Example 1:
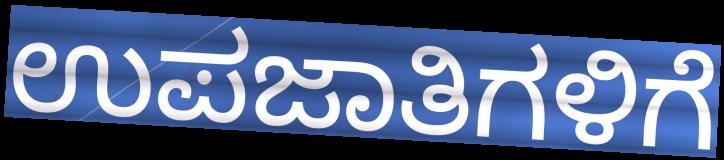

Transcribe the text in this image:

ಉಪಜಾತಿಗಳಿಗೆ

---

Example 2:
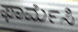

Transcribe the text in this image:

ಫಾರ್ಮೆಸಿ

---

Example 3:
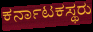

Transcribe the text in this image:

ಕರ್ನಾಟಕಸ್ಥರು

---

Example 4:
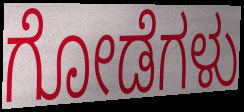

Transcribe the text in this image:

ಗೋಡೆಗಳು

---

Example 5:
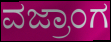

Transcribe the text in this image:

ವಜ್ರಾಂಗ